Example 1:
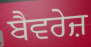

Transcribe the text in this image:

ਬੈਵਰੇਜ਼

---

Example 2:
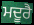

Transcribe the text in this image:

ਮਦੂਰੈ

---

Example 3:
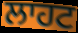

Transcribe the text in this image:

ਲਾਹਟ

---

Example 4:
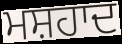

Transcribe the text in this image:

ਮਸ਼ਹਾਦ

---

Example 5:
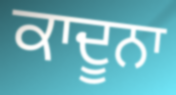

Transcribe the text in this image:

ਕਾਦੂਨਾ